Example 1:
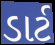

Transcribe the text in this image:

ડાર્ટ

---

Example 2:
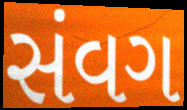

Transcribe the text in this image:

સંવગ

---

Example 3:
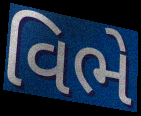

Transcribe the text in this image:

વિભે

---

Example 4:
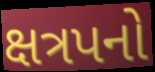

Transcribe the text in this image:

ક્ષત્રપનો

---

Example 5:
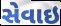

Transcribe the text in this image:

સેવાઇ